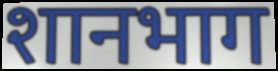
शानभाग